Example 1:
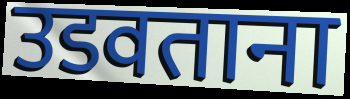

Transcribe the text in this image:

उडवताना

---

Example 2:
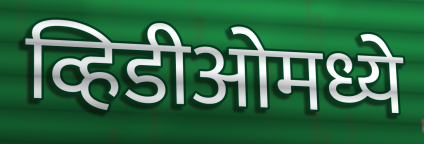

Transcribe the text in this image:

व्हिडीओमध्ये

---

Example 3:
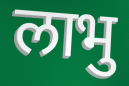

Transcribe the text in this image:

लाभु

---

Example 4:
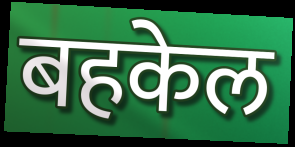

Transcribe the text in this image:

बहकेल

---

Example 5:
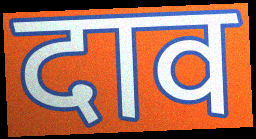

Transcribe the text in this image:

दाव